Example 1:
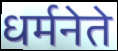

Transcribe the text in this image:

धर्मनेते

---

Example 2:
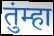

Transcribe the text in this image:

तुंम्हा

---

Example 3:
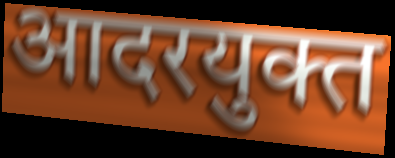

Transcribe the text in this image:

आदरयुक्त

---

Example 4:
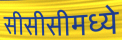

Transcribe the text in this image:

सीसीसीमध्ये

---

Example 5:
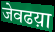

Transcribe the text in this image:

जेवढय़ा